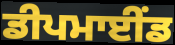
ਡੀਪਮਾਈਂਡ